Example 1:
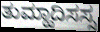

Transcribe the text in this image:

ತುಮ್ಹಾದಿಸಸ್ಸ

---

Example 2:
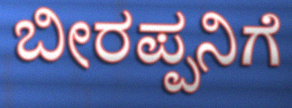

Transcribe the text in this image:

ಬೀರಪ್ಪನಿಗೆ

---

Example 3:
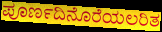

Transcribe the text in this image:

ಪೂರ್ಣದಿನೊರೆಯಲರಿತ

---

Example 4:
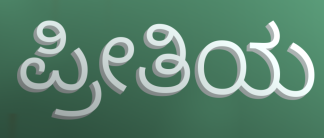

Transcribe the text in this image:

ಪ್ರೀತಿಯ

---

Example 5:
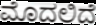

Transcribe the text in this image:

ಮೊದಲಿದೆ